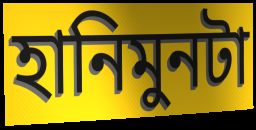
হানিমুনটা